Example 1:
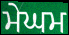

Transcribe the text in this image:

ਮੇਘਮ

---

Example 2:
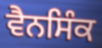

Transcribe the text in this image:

ਵੈਨਸਿੰਕ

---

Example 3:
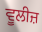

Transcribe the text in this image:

ਵੂਲੀਜ਼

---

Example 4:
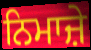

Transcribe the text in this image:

ਨਿਮਾਜ਼ੇ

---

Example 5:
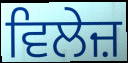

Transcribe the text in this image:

ਵਿਲੇਜ਼